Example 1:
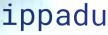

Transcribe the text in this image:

ippadu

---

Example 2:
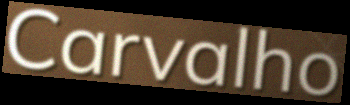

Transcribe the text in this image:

Carvalho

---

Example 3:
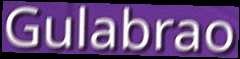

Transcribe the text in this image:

Gulabrao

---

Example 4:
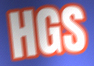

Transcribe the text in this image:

HGS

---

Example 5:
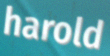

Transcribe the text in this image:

harold